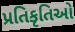
પ્રતિકૃતિઓ